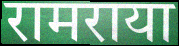
रामराया